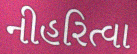
નીહરિત્વા